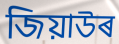
জিয়াউৰ